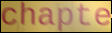
chapte